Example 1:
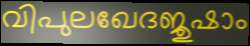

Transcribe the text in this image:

വിപുലഖേദജുഷാം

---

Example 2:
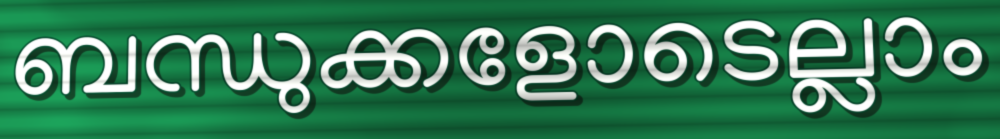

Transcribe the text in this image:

ബന്ധുക്കളോടെല്ലാം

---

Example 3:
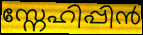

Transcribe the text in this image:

സ്നേഹിപ്പിൻ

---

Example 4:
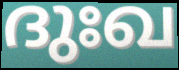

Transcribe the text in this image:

ദുഃഖ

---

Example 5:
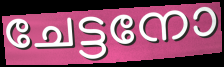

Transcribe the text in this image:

ചേട്ടനോ